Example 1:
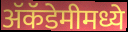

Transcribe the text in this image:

ॲकॅडेमीमध्ये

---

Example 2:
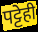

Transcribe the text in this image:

पट्टेही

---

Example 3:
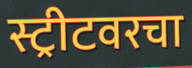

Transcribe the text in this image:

स्ट्रीटवरचा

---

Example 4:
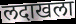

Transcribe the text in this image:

लदाखला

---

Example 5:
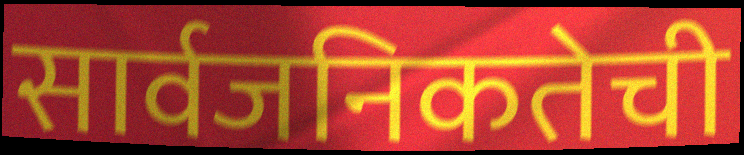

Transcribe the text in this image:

सार्वजनिकतेची